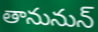
తానునున్